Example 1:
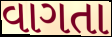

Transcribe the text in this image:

વાગતા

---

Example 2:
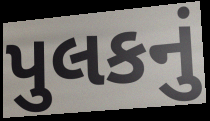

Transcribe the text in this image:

પુલકનું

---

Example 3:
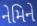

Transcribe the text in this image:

નેમિને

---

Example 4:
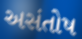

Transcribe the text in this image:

અસંતોષ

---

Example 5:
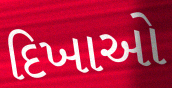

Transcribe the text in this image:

દિખાઓ